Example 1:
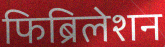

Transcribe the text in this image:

फिब्रिलेशन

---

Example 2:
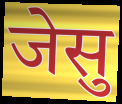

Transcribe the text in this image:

जेसु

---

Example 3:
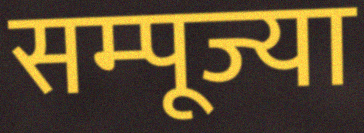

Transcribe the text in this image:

सम्पूज्या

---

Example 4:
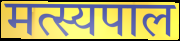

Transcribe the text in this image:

मत्स्यपाल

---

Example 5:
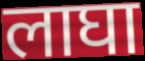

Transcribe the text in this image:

लाघा